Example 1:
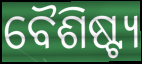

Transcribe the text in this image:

ବୈଶିଷ୍ଟ୍ୟ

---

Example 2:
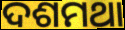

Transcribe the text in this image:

ଦଶମଥା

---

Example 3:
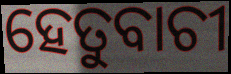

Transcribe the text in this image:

ହେତୁବାଚୀ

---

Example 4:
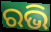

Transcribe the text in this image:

ରଭି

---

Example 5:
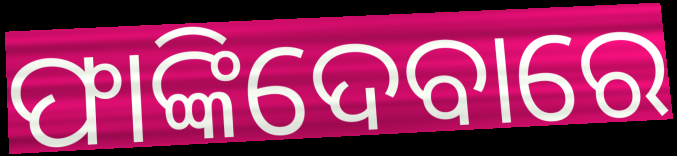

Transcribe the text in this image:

ଫାଙ୍କିଦେବାରେ